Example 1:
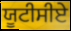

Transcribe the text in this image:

ਯੂਟੀਸੀਏ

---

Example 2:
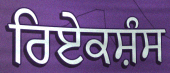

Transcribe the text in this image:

ਰਿਏਕਸ਼ੰਸ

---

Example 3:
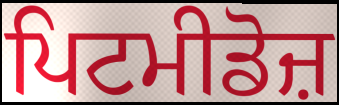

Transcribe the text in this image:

ਪਿਟਮੀਡੋਜ਼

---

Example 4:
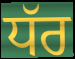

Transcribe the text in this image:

ਧੱਰ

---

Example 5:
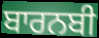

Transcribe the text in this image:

ਬਾਰਨਬੀ